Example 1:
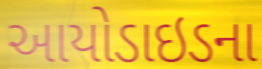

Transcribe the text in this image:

આયોડાઇડના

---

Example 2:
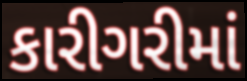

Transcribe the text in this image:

કારીગરીમાં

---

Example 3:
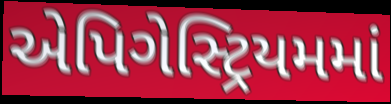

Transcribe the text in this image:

એપિગેસ્ટ્રિયમમાં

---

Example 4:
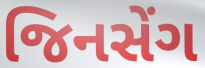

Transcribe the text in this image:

જિનસેંગ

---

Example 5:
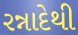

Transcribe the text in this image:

રન્નાદેથી